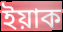
ইয়াক